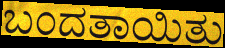
ಬಂದತಾಯಿತು